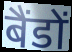
बैंडों